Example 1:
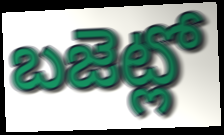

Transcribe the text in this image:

బజెట్లో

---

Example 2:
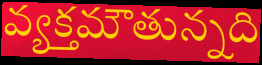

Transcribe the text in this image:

వ్యక్తమౌతున్నది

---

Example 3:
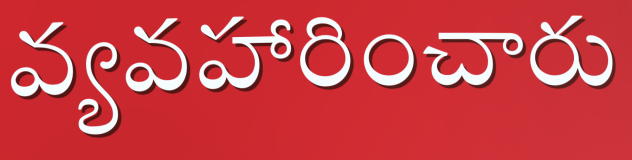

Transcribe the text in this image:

వ్యవహారించారు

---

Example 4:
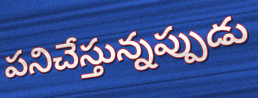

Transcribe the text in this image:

పనిచేస్తున్నప్పుడు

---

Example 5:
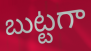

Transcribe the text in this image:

బుట్టగా